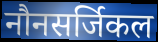
नौनसर्जिकल